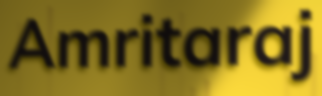
Amritaraj